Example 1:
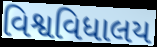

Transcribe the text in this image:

વિશ્વવિધાલય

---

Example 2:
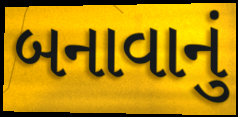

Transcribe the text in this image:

બનાવાનું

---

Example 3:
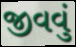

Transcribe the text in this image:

જીવવું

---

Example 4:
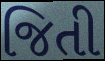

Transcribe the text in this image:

જિતી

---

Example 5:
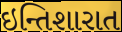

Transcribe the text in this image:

ઇન્તિશારાત